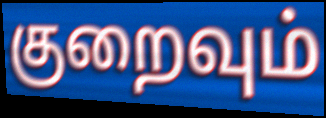
குறைவும்